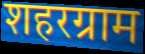
शहरग्राम